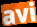
avi